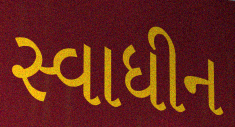
સ્વાધીન